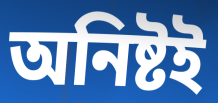
অনিষ্টই